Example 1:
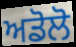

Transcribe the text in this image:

ਅਡੋਲੋ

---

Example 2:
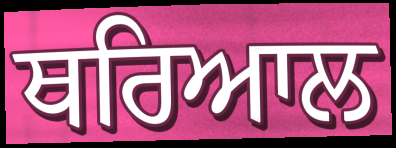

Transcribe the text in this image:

ਥਰਿਆਲ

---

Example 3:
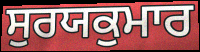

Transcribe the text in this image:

ਸੁਰਯਕੁਮਾਰ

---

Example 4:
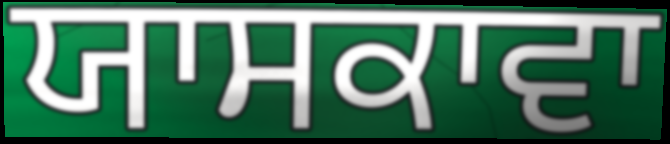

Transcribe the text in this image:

ਯਾਸਕਾਵਾ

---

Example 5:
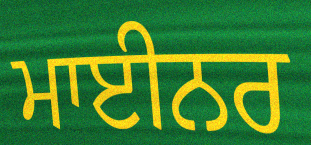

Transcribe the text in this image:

ਮਾਈਨਰ